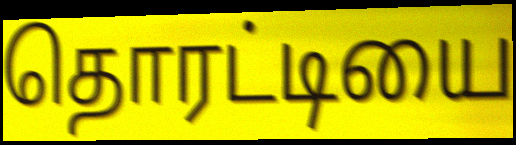
தொரட்டியை